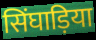
सिंघाड़िया